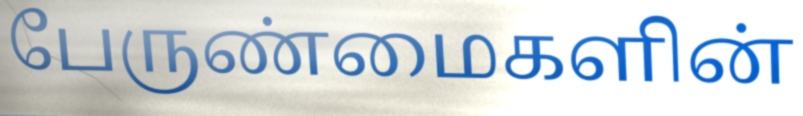
பேருண்மைகளின்